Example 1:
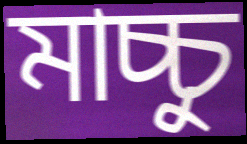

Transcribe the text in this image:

মাচ্চু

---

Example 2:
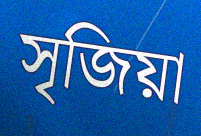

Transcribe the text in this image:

সৃজিয়া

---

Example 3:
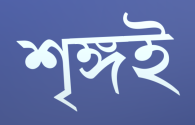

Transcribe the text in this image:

শৃঙ্গই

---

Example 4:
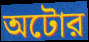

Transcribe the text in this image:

অটোর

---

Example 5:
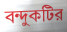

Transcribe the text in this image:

বন্দুকটির